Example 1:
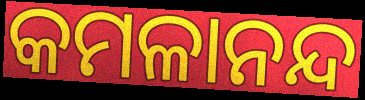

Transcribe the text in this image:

କମଳାନନ୍ଦ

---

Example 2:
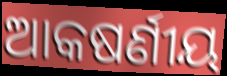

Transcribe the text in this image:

ଆକଷର୍ଣୀୟ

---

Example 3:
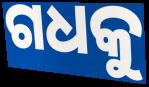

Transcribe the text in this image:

ଗଧକୁ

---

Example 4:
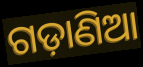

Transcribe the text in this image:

ଗଡ଼ାଣିଆ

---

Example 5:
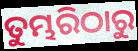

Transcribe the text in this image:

ତୁମ୍ଭରିଠାରୁ